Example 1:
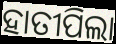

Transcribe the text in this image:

ହାତୀପିଲା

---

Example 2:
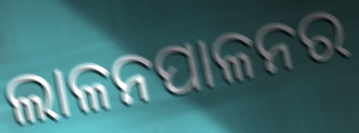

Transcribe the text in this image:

ଲାଳନପାଳନର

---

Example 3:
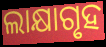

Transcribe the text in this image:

ଲାକ୍ଷାଗୃହ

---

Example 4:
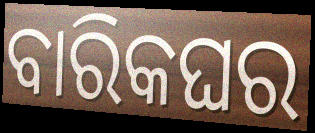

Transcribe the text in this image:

ବାରିକଘର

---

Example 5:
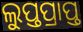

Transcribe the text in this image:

ଲୁପ୍ତପ୍ରାପ୍ତ